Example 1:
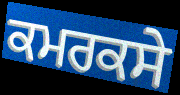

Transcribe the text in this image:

ਕਮਰਕਸੇ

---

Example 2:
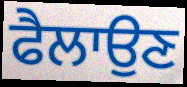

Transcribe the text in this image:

ਫੈਲਾਉਣ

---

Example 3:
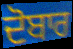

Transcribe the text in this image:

ਦੋਬਾਰ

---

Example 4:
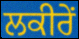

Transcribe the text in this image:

ਲਕੀਰੇਂ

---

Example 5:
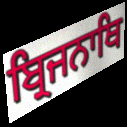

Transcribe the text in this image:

ਬ੍ਰਿਜਨਾਥਿ